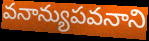
వనాన్యుపవనాని